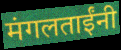
मंगलताईंनी